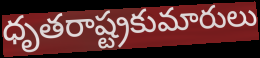
ధృతరాష్ట్రకుమారులు